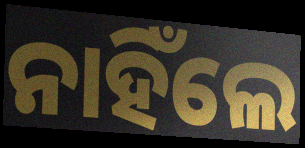
ନାହିଁଲେ